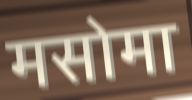
मसोमा